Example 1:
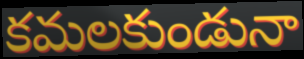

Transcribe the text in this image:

కమలకుండునా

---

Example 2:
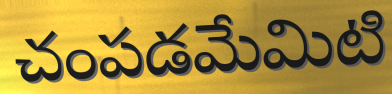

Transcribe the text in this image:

చంపడమేమిటి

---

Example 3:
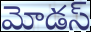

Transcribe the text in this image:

మోడస్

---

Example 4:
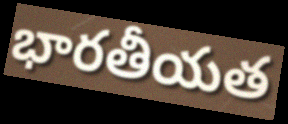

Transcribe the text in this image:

భారతీయత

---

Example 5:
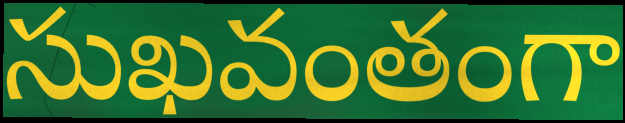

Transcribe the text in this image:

సుఖవంతంగా